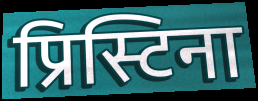
प्रिस्टिना